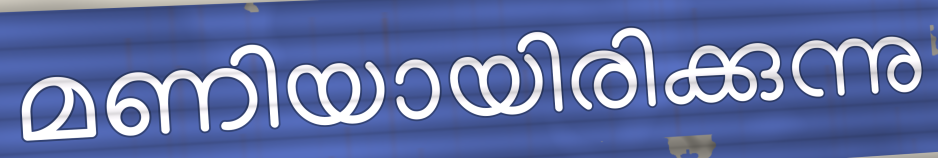
മണിയായിരിക്കുന്നു